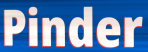
Pinder